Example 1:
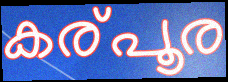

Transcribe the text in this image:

കര്പൂര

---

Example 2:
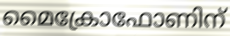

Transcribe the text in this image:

മൈക്രോഫോണിന്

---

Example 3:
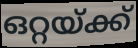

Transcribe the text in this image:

ഒറ്റയ്ക്ക്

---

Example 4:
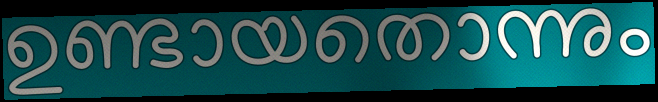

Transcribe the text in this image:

ഉണ്ടായതൊന്നും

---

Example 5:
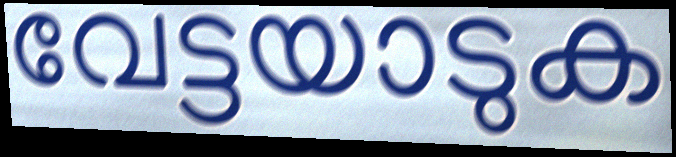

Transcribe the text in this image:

വേട്ടയാടുക